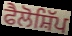
ਫੈਲੋਸ਼ਿੱਪ